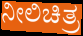
ನೀಲಿಚಿತ್ರ